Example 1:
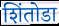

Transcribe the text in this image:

शिंतोडा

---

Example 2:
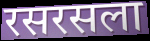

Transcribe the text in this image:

रसरसला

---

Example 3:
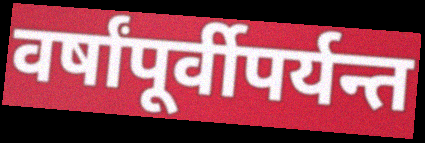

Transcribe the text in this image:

वर्षांपूर्वीपर्यन्त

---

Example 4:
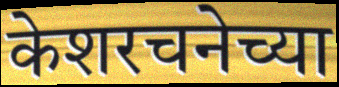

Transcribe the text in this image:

केशरचनेच्या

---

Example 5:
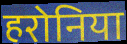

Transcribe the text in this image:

हरोनिया